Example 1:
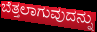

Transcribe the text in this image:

ಬೆತ್ತಲಾಗುವುದನ್ನು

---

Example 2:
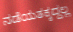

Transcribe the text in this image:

ನಡೆಯತಕ್ಕದ್ದಲ್ಲ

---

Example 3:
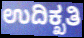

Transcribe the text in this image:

ಉದಿಕ್ಖತಿ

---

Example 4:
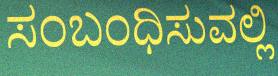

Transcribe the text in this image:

ಸಂಬಂಧಿಸುವಲ್ಲಿ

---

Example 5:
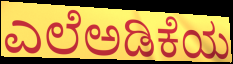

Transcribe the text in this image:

ಎಲೆಅಡಿಕೆಯ